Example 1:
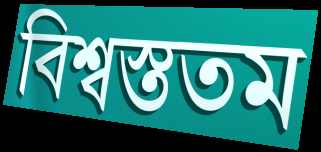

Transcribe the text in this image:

বিশ্বস্ততম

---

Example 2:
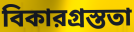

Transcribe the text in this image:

বিকারগ্রস্ততা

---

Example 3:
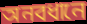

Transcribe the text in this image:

অনবধানে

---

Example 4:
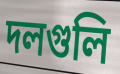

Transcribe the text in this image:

দলগুলি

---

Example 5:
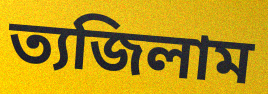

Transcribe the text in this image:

ত্যজিলাম